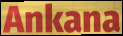
Ankana